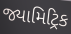
જ્યામિટ્રિક